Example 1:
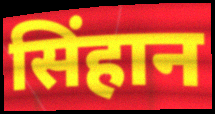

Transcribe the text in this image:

सिंहान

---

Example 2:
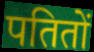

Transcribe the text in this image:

पतितों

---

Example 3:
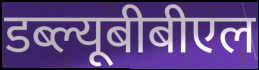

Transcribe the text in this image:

डब्ल्यूबीबीएल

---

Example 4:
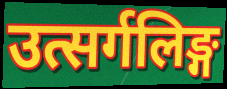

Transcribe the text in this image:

उत्सर्गलिङ्ग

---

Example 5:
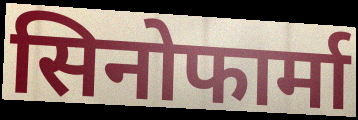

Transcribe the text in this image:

सिनोफार्मा